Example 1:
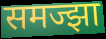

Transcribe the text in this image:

समज्झा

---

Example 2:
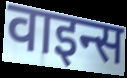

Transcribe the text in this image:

वाइन्स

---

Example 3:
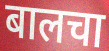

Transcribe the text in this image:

बालचा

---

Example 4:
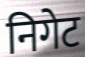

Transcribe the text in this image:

निगेट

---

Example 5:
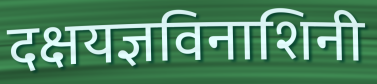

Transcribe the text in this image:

दक्षयज्ञविनाशिनी